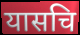
यासचि